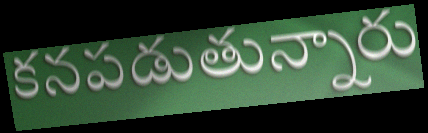
కనపడుతున్నారు